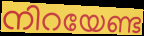
നിറയേണ്ട